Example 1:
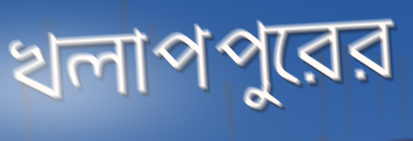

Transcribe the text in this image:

খলাপপুরের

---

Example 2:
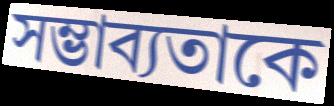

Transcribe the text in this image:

সম্ভাব্যতাকে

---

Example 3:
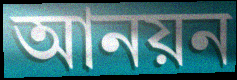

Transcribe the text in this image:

আনয়ন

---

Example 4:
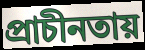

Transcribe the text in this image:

প্রাচীনতায়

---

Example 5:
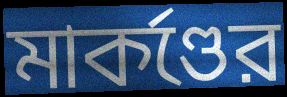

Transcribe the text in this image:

মার্কণ্ডের